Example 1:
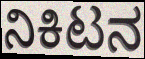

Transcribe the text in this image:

ನಿಕಿಟನ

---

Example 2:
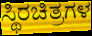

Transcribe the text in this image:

ಸ್ಥಿರಚಿತ್ರಗಳ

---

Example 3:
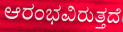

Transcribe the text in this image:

ಆರಂಭವಿರುತ್ತದೆ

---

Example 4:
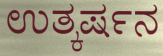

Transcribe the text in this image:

ಉತ್ಕರ್ಷನ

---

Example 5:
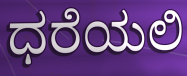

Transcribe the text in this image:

ಧರೆಯಲಿ